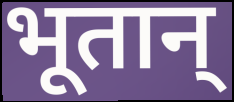
भूतान्